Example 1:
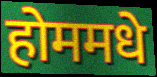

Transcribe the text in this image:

होममधे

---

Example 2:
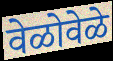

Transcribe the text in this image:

वेळोवेळे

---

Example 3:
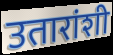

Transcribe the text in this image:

उतारांशी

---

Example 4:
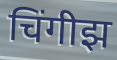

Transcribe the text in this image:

चिंगीझ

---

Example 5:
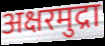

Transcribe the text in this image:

अक्षरमुद्रा